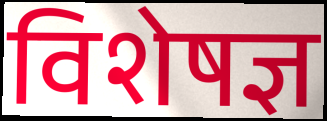
विशेषज्ञ